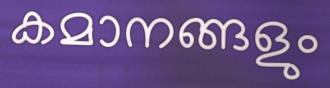
കമാനങ്ങളും